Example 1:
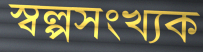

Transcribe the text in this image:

স্বল্পসংখ্যক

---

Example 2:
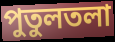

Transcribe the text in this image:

পুতুলতলা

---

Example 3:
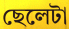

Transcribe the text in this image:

ছেলেটা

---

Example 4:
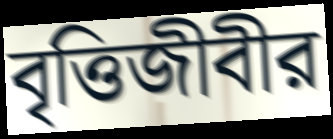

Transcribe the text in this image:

বৃত্তিজীবীর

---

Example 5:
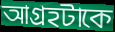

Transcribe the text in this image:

আগ্রহটাকে